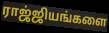
ராஜ்ஜியங்களை